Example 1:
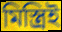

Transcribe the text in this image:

মিস্ত্রিই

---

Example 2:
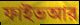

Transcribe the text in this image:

ফাইভআর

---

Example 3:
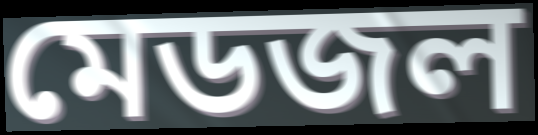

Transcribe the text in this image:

মেডজল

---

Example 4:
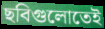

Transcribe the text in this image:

ছবিগুলোতেই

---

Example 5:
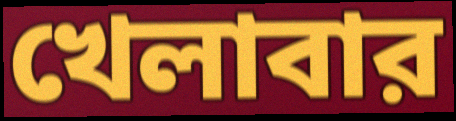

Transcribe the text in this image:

খেলাবার